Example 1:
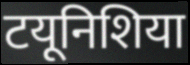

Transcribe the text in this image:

टयूनिशिया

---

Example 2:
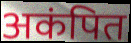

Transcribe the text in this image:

अकंपित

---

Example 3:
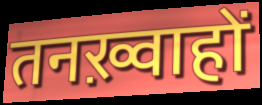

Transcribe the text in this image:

तनख़्वाहों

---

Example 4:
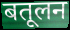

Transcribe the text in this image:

बतूलन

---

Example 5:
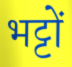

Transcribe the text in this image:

भट्टों